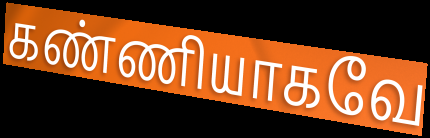
கண்ணியாகவே